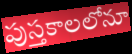
పుస్తకాలలోనూ